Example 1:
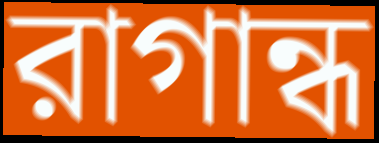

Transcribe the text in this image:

রাগান্ধ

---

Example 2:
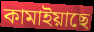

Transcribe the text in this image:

কামাইয়াছে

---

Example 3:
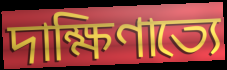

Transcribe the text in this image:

দাক্ষিণাত্যে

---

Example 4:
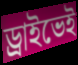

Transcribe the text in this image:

ড্রাইভেই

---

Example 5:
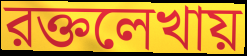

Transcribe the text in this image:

রক্তলেখায়